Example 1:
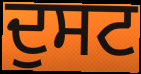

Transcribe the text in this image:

ਦੁਸਟ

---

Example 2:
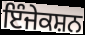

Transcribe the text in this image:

ਇੰਜੇਕਸ਼ਨ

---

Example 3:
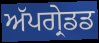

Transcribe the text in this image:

ਅੱਪਗ੍ਰੇਡਡ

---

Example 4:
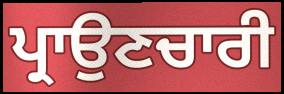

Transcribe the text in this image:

ਪ੍ਰਾਉਣਚਾਰੀ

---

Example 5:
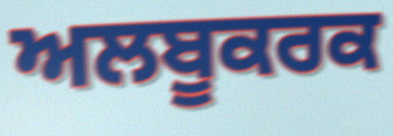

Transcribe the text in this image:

ਅਲਬੂਕਰਕ